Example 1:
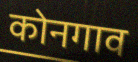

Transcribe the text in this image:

कोनगाव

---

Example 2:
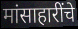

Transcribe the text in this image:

मांसाहारींचे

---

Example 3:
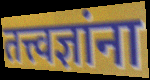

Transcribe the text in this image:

तत्त्वज्ञांना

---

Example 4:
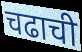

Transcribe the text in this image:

चढाची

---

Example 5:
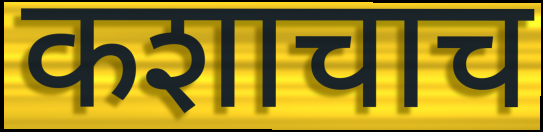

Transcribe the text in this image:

कशाचाच